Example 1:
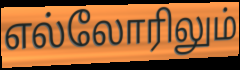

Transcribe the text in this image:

எல்லோரிலும்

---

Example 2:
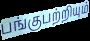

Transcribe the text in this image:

பங்குபற்றியும்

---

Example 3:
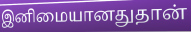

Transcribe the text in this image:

இனிமையானதுதான்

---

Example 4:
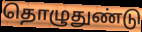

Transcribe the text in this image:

தொழுதுண்டு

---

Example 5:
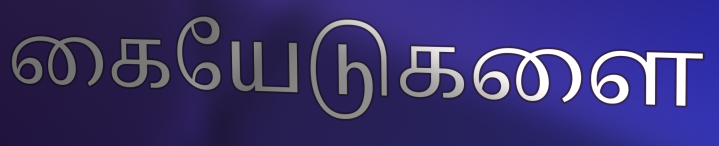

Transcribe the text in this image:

கையேடுகளை